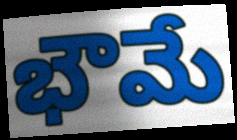
భౌమే